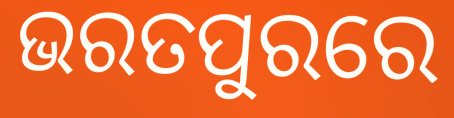
ଭରତପୁରରେ